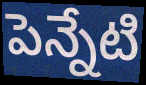
పెన్నేటి